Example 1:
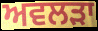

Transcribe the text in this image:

ਅਵਲੜਾ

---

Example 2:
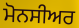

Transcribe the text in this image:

ਮੋਨਸੀਅਰ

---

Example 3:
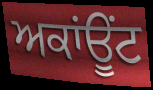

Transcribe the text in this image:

ਅਕਾਂਊਂਟ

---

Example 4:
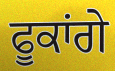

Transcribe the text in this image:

ਫੂਕਾਂਗੇ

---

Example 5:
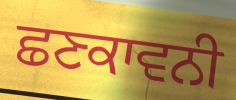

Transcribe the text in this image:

ਛਣਕਾਵਨੀ